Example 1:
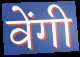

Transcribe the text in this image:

वेंगी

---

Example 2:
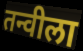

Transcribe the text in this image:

तन्वीला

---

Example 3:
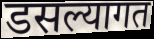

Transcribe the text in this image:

डसल्यागत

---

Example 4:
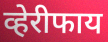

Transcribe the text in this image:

व्हेरीफाय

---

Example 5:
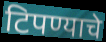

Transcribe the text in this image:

टिपण्याचे